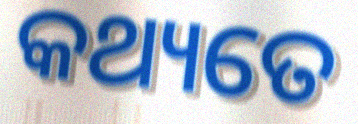
କଥ୍ୟତେ